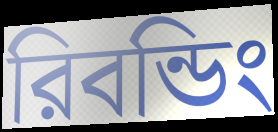
রিবন্ডিং